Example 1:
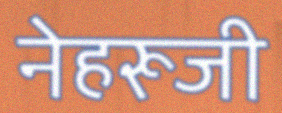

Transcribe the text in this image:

नेहरूजी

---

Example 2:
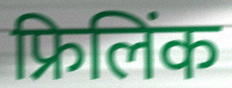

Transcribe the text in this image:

फ्रिलिंक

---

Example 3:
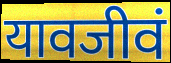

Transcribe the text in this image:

यावजीवं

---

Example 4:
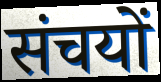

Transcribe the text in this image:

संचयों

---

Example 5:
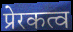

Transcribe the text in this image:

प्रेरकत्व